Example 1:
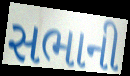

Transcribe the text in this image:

સભાની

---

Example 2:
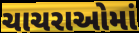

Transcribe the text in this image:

ચાચરાઓમાં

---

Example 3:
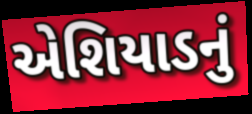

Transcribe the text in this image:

એશિયાડનું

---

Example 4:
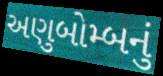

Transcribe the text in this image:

અણુબોમ્બનું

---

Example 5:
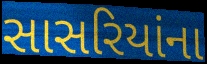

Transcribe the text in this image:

સાસરિયાંના